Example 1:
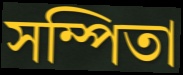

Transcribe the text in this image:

সম্পিতা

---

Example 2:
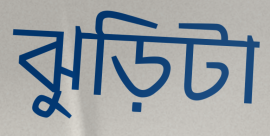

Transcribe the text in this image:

ঝুড়িটা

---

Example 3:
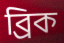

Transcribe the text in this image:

ব্রিক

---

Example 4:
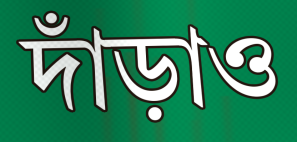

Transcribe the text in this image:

দাঁড়াও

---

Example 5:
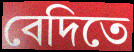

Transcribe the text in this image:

বেদিতে